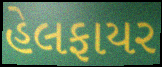
હેલફાયર